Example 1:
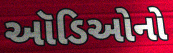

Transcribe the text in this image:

ઑડિઓનો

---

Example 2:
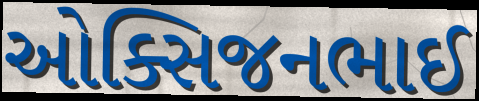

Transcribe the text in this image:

ઓક્સિજનભાઈ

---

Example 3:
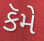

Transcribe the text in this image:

કૅમે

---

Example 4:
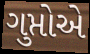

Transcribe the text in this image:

ગુપ્તોએ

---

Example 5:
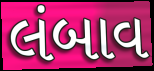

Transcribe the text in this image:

લંબાવ